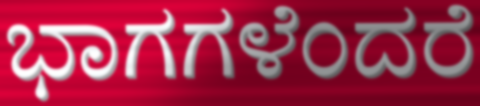
ಭಾಗಗಳೆಂದರೆ